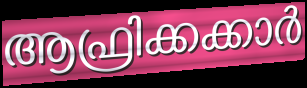
ആഫ്രിക്കക്കാർ